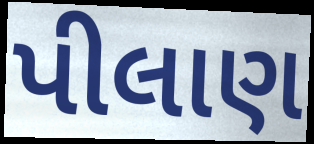
પીલાણ